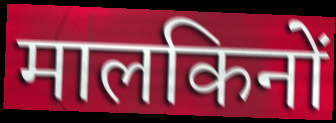
मालकिनों